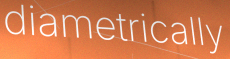
diametrically